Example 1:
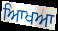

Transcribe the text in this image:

ਆਿਖਆ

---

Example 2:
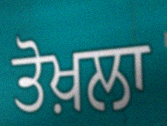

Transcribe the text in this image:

ਤੋਖ਼ਲਾ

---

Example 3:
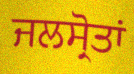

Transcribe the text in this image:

ਜਲਸ੍ਰੋਤਾਂ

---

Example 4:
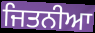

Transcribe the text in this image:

ਜਿਤਨੀਆ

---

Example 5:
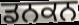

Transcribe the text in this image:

ਡਨਕਨ